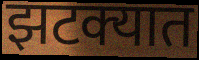
झटक्‍यात